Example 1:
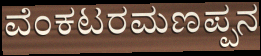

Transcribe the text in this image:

ವೆಂಕಟರಮಣಪ್ಪನ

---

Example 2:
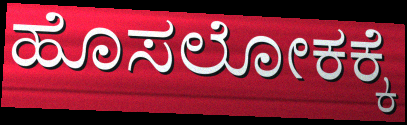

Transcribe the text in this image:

ಹೊಸಲೋಕಕ್ಕೆ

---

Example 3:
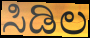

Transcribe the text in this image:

ಸಿಡಿಲ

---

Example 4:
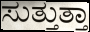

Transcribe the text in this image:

ಸುತ್ತುತ್ತಾ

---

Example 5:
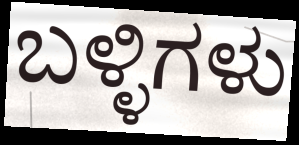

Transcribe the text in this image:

ಬಳ್ಳಿಗಳು